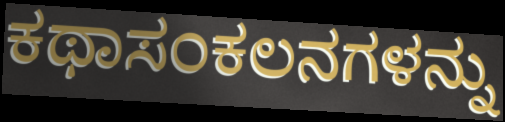
ಕಥಾಸಂಕಲನಗಳನ್ನು